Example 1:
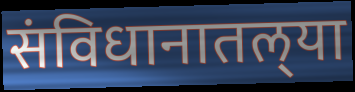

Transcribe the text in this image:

संविधानातल्या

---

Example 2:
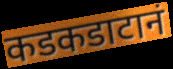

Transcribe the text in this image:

कडकडाटानं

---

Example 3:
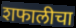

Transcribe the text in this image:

शफालीचा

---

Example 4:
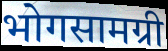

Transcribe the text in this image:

भोगसामग्री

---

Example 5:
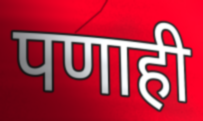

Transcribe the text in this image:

पणाही